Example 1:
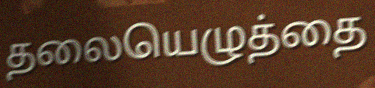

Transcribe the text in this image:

தலையெழுத்தை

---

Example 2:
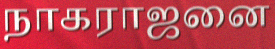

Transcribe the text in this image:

நாகராஜனை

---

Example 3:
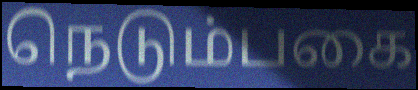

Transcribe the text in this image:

நெடும்பகை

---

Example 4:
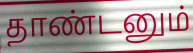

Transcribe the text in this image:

தாண்டனும்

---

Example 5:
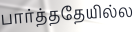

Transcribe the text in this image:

பார்த்ததேயில்ல